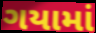
ગયામાં